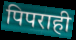
पिपराही